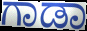
ಗಾಡಾ